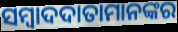
ସମ୍ବାଦଦାତାମାନଙ୍କର